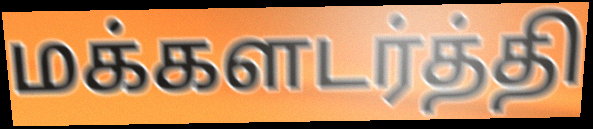
மக்களடர்த்தி